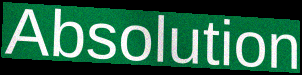
Absolution